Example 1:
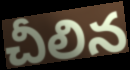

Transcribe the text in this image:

చీలిన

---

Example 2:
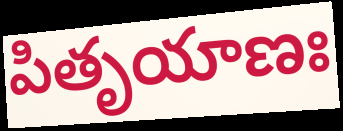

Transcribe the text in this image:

పితృయాణః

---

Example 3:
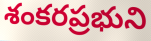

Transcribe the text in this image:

శంకరప్రభుని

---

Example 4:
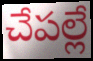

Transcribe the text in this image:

చేపల్లే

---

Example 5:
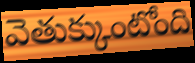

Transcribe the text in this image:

వెతుక్కుంటోంది